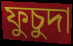
ফুচুদা